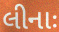
લીનાઃ